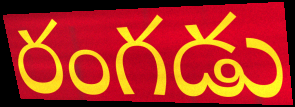
రంగడు